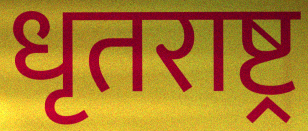
धृतराष्ट्र